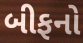
બીફનો